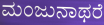
ಮಂಜುನಾಥರೆ